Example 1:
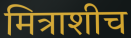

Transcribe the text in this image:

मित्राशीच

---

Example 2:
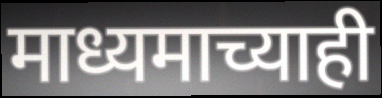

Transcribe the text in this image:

माध्यमाच्याही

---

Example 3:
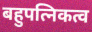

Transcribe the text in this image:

बहुपत्निकत्व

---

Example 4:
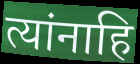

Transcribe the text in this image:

त्यांनाहि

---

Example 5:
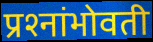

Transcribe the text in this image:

प्रश्नांभोवती